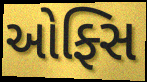
ઓફ્સિ